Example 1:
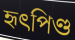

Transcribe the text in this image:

হৃৎপিণ্ড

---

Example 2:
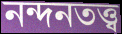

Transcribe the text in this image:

নন্দনতত্ত্ব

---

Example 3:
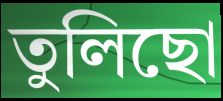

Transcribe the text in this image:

তুলিছো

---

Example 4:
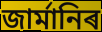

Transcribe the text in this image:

জাৰ্মানিৰ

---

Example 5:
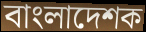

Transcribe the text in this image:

বাংলাদেশক